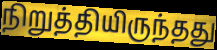
நிறுத்தியிருந்தது